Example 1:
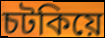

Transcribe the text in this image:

চটকিয়ে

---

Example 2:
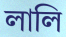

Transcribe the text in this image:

লালি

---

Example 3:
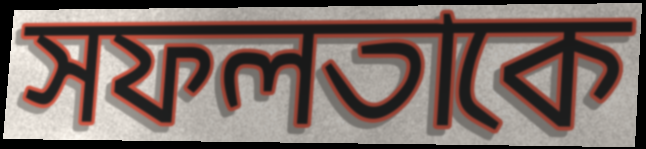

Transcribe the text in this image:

সফলতাকে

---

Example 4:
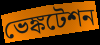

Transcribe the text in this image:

ভেঙ্কটেশন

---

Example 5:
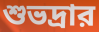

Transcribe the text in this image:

শুভদ্রার